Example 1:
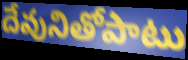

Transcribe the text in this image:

దేవునితోపాటు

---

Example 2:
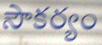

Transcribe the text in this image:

సౌకర్యం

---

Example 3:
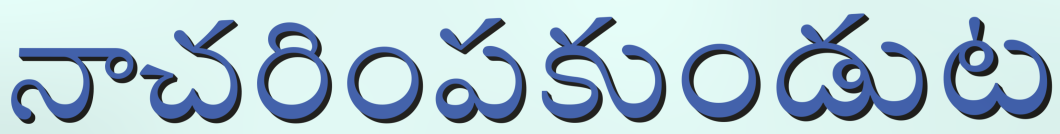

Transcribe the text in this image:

నాచరింపకుండుట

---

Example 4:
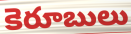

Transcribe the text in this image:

కెరూబులు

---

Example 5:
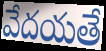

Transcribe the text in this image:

వేదయతే